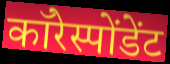
कॉरेस्पोंडेंट